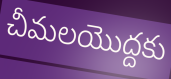
చీమలయొద్దకు